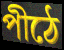
পীঠে